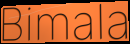
Bimala